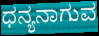
ಧನ್ಯನಾಗುವ